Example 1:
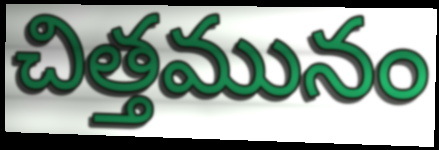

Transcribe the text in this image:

చిత్తమునం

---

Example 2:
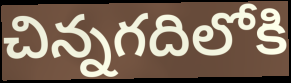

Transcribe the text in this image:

చిన్నగదిలోకి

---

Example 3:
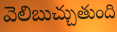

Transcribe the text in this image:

వెలిబుచ్చుతుంది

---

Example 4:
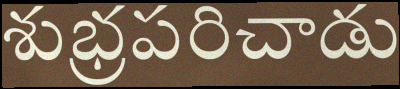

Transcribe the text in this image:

శుభ్రపరిచాడు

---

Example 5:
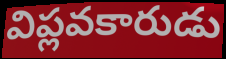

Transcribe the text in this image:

విప్లవకారుడు